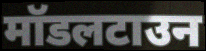
मॉडलटाउन